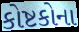
કોષ્ટકોના